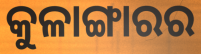
କୁଳାଙ୍ଗାରର